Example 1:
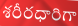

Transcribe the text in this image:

శరీరధారిగా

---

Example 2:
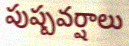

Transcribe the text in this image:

పుష్పవర్షాలు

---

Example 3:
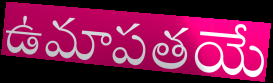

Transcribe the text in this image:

ఉమాపతయే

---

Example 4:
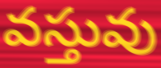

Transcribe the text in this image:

వస్తువు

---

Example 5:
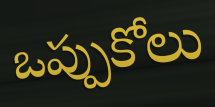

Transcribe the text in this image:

ఒప్పుకోలు